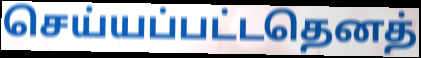
செய்யப்பட்டதெனத்